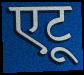
एटू